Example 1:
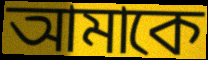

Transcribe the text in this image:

আমাকে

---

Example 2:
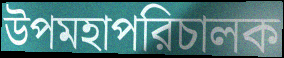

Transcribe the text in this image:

উপমহাপরিচালক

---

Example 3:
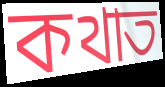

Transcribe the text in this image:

কথাত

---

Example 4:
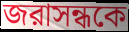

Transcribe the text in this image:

জরাসন্ধকে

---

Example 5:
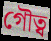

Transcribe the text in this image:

গৌত্ব